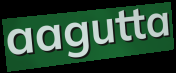
aagutta